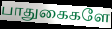
பாதுகைகளே